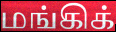
மங்கிக்